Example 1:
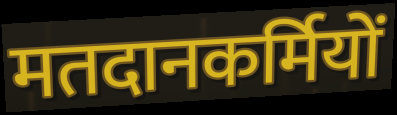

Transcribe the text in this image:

मतदानकर्मियों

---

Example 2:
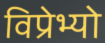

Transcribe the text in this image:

विप्रेभ्यो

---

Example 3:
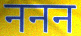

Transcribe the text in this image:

ननन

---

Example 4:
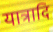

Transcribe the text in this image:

यात्रादि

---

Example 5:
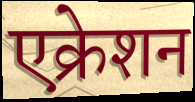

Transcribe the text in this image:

एक्रेशन